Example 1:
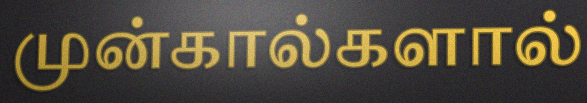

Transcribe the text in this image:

முன்கால்களால்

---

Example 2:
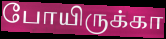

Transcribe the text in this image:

போயிருக்கா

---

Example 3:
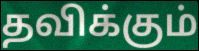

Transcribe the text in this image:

தவிக்கும்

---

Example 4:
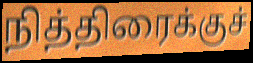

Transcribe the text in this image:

நித்திரைக்குச்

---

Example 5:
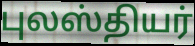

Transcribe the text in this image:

புலஸ்தியர்